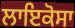
ਲਾਇਕੋਸਾ